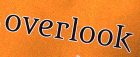
overlook